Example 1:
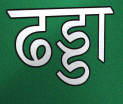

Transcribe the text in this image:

ढड्डा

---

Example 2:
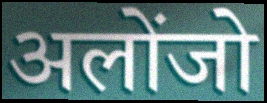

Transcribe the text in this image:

अलोंजो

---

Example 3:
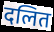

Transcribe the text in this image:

दलित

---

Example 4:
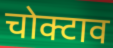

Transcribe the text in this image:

चोक्टाव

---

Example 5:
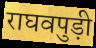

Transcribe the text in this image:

राघवपुड़ी